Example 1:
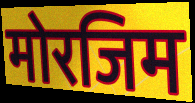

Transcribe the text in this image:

मोरजिम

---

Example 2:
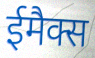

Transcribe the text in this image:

ईमैक्स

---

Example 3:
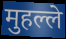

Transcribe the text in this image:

मुहल्ले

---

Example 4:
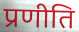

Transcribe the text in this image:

प्रणीति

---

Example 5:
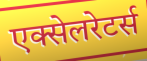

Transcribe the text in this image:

एक्सेलरेटर्स